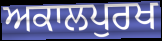
ਅਕਾਲਪੁਰਖ